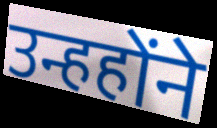
उन्हहोंने